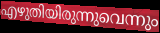
എഴുതിയിരുന്നുവെന്നും